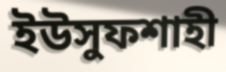
ইউসুফশাহী